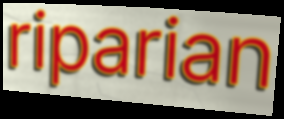
riparian